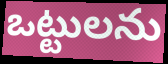
ఒట్టులను